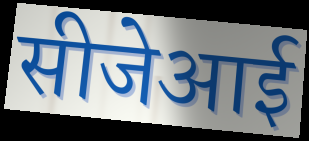
सीजेआई